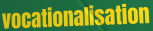
vocationalisation